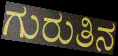
ಗುರುತಿನ